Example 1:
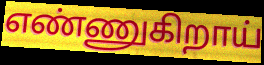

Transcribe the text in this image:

எண்ணுகிறாய்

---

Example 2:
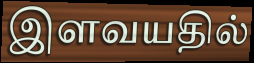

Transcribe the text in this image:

இளவயதில்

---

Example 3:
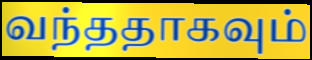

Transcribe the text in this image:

வந்ததாகவும்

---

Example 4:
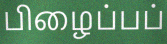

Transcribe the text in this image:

பிழைப்பப்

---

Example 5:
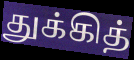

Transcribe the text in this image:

துக்கித்